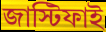
জাস্টিফাই